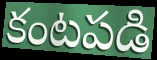
కంటపడి